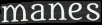
manes